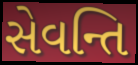
સેવન્તિ